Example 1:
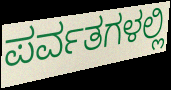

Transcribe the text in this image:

ಪರ್ವತಗಳಲ್ಲಿ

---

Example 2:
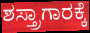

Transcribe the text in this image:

ಶಸ್ತ್ರಾಗಾರಕ್ಕೆ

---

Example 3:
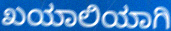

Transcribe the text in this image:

ಖಯಾಲಿಯಾಗಿ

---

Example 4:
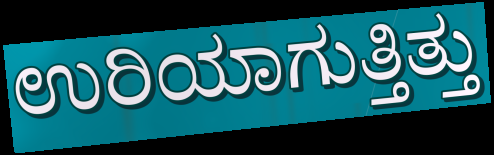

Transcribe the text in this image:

ಉರಿಯಾಗುತ್ತಿತ್ತು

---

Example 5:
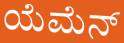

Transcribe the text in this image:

ಯೆಮೆನ್